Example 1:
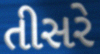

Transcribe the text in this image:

તીસરે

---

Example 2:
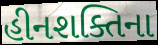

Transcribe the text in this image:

હીનશક્તિના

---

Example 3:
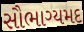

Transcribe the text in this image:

સૌભાગ્યમદ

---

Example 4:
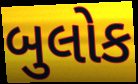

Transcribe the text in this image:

બુલોક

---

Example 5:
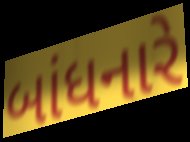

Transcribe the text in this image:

બાંધનારે